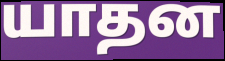
யாதன